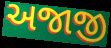
અજાજી